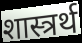
शास्त्रर्थ